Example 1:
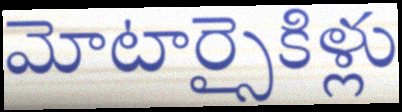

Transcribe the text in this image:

మోటార్సైకిళ్లు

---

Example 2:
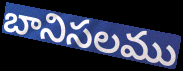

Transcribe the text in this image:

బానిసలము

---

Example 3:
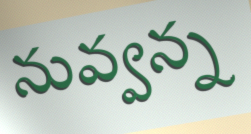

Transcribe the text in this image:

నువ్వన్న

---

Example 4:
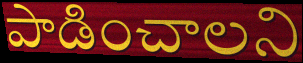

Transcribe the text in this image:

పాడించాలని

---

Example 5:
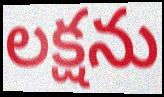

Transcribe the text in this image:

లక్షను